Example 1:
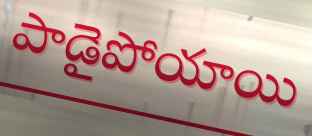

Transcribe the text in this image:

పాడైపోయాయి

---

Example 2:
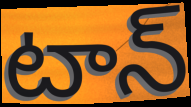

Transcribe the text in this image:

టాన్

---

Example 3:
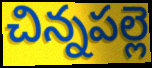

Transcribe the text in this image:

చిన్నపల్లె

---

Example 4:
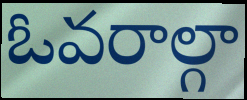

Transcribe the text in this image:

ఓవరాల్గా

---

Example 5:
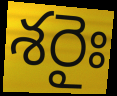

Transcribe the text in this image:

శరైః